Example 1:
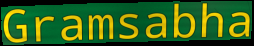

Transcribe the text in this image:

Gramsabha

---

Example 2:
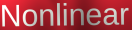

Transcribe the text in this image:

Nonlinear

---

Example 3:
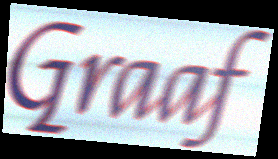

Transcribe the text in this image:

Graaf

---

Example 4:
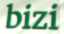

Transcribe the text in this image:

bizi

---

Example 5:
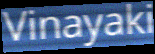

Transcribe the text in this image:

Vinayaki